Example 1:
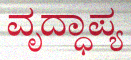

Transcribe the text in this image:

ವೃದ್ಧಾಪ್ಯ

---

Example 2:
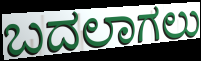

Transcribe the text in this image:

ಬದಲಾಗಲು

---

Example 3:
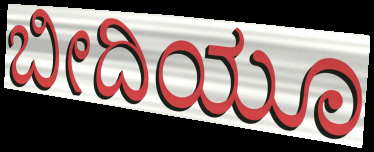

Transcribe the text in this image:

ಬೀದಿಯೂ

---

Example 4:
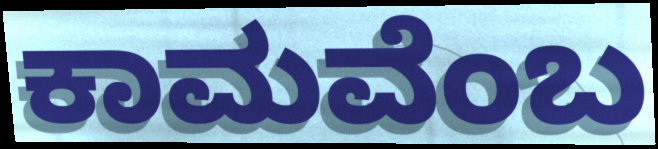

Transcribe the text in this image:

ಕಾಮವೆಂಬ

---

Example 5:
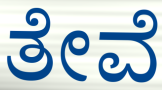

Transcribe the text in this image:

ತೇವೆ